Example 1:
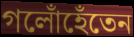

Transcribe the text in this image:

গলোঁহেঁতেন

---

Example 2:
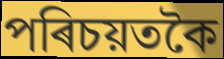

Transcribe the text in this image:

পৰিচয়তকৈ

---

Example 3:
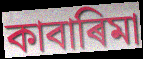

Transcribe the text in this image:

কাবাৰিমা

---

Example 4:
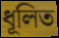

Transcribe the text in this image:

ধূলিত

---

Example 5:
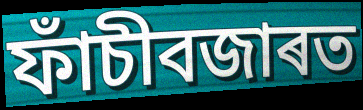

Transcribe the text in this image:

ফাঁচীবজাৰত